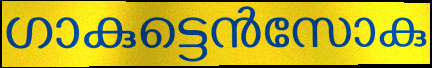
ഗാകുട്ടെൻസോകു